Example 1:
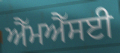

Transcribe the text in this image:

ਐੱਮਐੱਸਈ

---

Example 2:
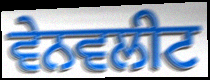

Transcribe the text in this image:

ਵੇਨਵਲੀਟ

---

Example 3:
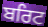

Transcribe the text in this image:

ਬਰਿਟ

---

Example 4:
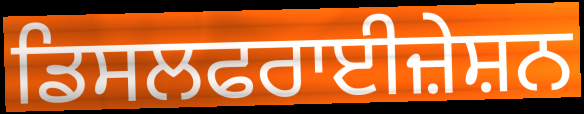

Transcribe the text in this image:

ਡਿਸਲਫਰਾਈਜ਼ੇਸ਼ਨ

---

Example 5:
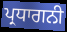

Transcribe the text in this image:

ਪ੍ਰਧਾਗਨੀ